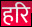
हरि